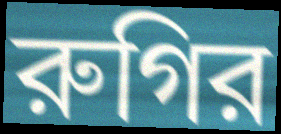
রুগির